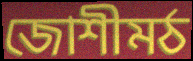
জোশীমঠ